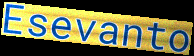
Esevanto